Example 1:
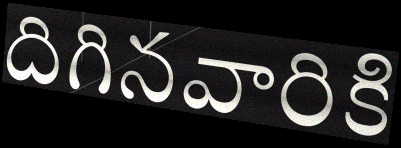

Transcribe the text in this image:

దిగినవారికి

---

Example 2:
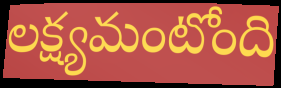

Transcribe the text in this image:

లక్ష్యమంటోంది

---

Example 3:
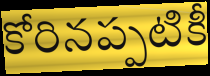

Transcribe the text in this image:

కోరినప్పటికీ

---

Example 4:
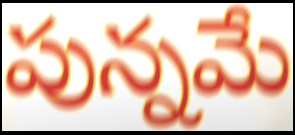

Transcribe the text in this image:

పున్నమే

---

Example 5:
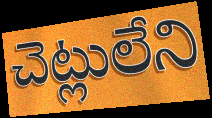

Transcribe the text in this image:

చెట్లులేని